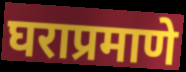
घराप्रमाणे